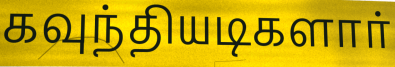
கவுந்தியடிகளார்